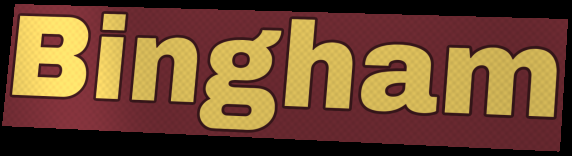
Bingham